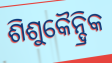
ଶିଶୁକୈନ୍ଦ୍ରିକ